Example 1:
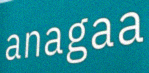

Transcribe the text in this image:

anagaa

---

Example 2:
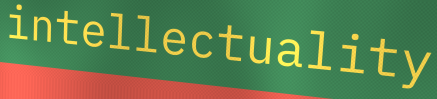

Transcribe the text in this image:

intellectuality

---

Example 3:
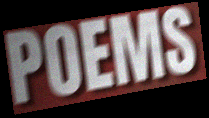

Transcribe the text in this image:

POEMS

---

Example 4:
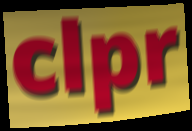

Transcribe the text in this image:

clpr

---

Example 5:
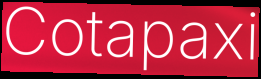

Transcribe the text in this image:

Cotapaxi